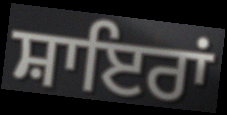
ਸ਼ਾਇਰਾਂ